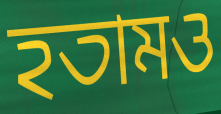
হতামও